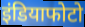
इंडियाफोटो